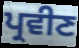
ਪ੍ਰਵੀਣ